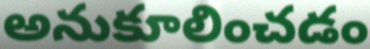
అనుకూలించడం